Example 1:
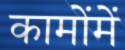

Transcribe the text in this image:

कामोंमें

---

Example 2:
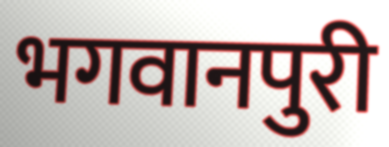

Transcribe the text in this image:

भगवानपुरी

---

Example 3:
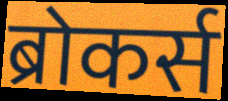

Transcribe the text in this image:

ब्रोकर्स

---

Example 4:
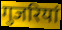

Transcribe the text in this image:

गुजरियां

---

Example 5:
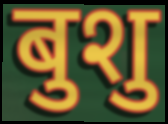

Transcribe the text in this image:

बुशु